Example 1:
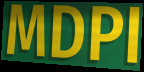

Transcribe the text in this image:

MDPI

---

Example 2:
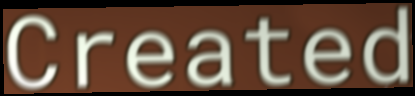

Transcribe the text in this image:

Created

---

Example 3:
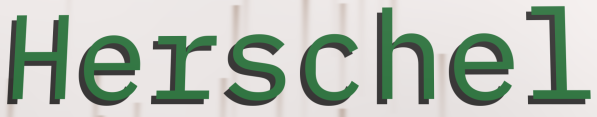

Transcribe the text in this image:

Herschel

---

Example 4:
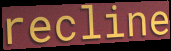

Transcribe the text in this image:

recline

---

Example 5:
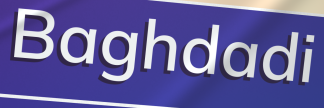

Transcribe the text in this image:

Baghdadi